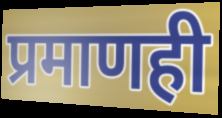
प्रमाणही